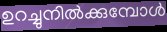
ഉറച്ചുനിൽക്കുമ്പോൾ